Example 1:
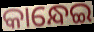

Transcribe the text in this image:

କାନ୍ଧେଇ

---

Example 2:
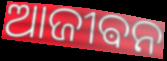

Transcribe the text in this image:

ଆଜୀଵନ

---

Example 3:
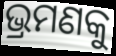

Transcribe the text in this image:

ଭ୍ରମଣକୁ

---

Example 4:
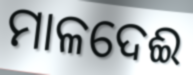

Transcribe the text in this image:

ମାଳଦେଈ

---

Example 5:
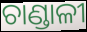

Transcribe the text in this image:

ଚାଣ୍ଡାଳୀ